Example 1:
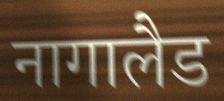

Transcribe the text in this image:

नागालैड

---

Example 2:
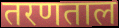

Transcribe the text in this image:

तरणताल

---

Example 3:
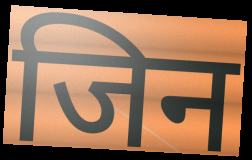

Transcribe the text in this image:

जिन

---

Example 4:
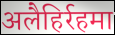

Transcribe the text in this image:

अलैहिर्रहमा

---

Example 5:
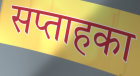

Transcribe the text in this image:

सप्ताहका